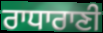
ਰਾਧਾਰਾਣੀ